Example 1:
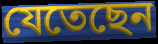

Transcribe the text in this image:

যেতেছেন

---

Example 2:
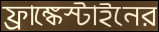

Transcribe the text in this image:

ফ্রাঙ্কেস্টাইনের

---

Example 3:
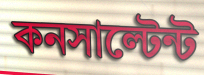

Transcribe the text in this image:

কনসাল্টেন্ট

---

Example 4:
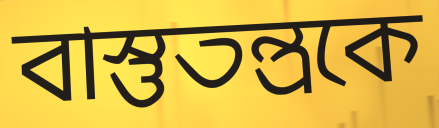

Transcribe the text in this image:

বাস্তুতন্ত্রকে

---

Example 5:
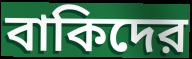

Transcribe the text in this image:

বাকিদের